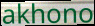
akhono